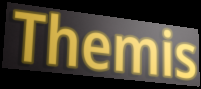
Themis